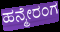
ಹನ್ಮೇರಂಗ